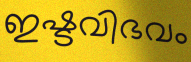
ഇഷ്ടവിഭവം